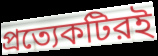
প্রত্যেকটিরই